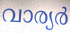
വാര്യർ